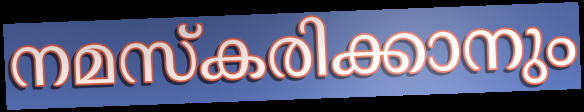
നമസ്കരിക്കാനും